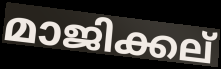
മാജിക്കല്